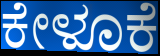
ಕೇಳೂಕೆ